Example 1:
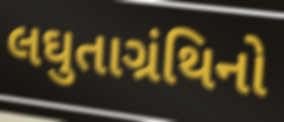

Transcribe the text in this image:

લઘુતાગ્રંથિનો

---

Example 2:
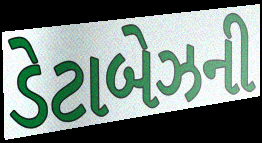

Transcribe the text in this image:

ડેટાબેઝની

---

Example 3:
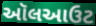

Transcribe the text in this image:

ઑલઆઉટ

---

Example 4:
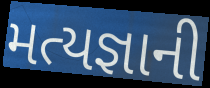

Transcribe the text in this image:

મત્યજ્ઞાની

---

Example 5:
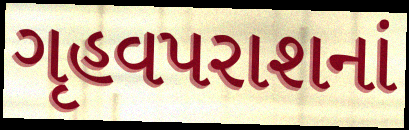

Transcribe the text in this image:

ગૃહવપરાશનાં